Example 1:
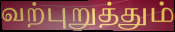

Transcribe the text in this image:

வற்புறுத்தும்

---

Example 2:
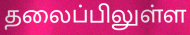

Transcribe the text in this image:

தலைப்பிலுள்ள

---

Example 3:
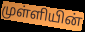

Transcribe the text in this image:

முள்ளியின்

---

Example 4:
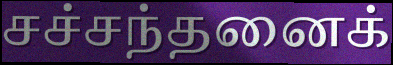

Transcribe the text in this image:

சச்சந்தனைக்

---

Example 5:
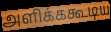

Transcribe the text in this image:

அளிக்ககூடிய